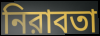
নিরাবতা